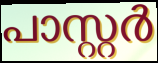
പാസ്റ്റർ